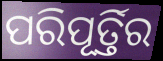
ପରିପୂର୍ତ୍ତିର